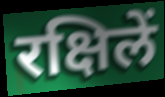
रक्षिलें